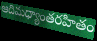
ఆదిమధ్యాంతరహితం